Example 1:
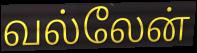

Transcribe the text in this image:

வல்லேன்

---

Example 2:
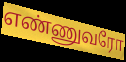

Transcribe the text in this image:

எண்ணுவரோ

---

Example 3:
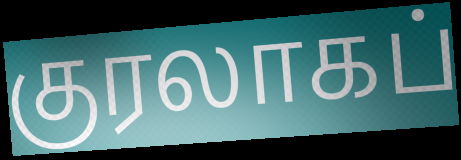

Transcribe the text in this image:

குரலாகப்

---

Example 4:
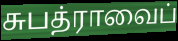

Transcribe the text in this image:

சுபத்ராவைப்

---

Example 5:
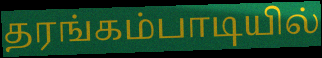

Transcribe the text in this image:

தரங்கம்பாடியில்